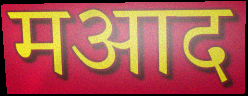
मआद